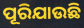
ପୂରିଯାଉଛି